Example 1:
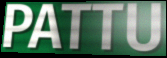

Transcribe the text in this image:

PATTU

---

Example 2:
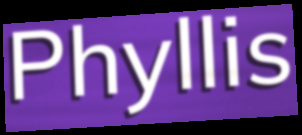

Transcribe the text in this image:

Phyllis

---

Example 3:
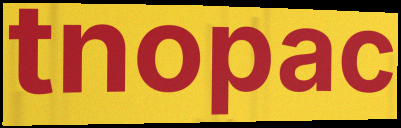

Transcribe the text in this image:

tnopac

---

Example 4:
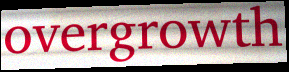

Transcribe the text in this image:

overgrowth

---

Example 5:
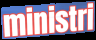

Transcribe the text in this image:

ministri